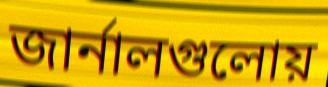
জার্নালগুলোয়